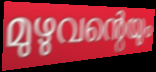
മുഴുവന്റെയും